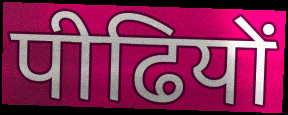
पीढियों